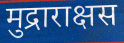
मुद्राराक्षस